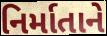
નિર્માતાને